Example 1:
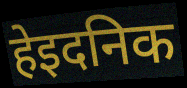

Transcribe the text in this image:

हेइदनिक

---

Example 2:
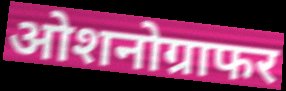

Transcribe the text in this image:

ओशनोग्राफर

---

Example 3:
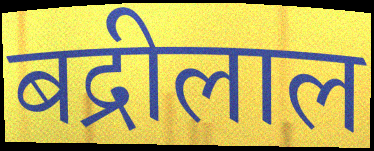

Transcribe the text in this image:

बद्रीलाल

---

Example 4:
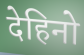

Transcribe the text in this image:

देहिनो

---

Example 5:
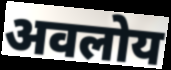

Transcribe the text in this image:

अवलोय